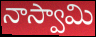
నాస్వామి